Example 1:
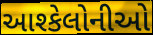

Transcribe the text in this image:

આશ્કેલોનીઓ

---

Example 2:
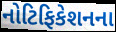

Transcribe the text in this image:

નોટિફિકેશનના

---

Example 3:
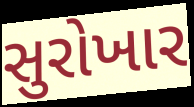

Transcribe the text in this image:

સુરોખાર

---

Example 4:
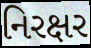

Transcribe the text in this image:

નિરક્ષર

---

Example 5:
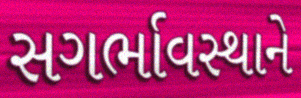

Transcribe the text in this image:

સગર્ભાવસ્થાને